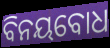
ବିନୟବୋଧ